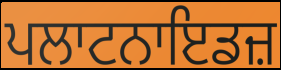
ਪਲਾਟਨਾਇਡਜ਼